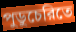
পুডুচেরিতে